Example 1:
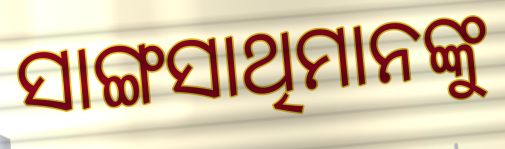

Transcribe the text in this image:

ସାଙ୍ଗସାଥିମାନଙ୍କୁ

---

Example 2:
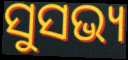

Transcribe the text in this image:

ସୁସଭ୍ୟ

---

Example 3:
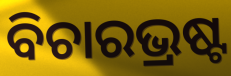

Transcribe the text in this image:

ବିଚାରଭ୍ରଷ୍ଟ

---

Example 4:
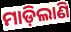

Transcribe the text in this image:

ମାଡ଼ିଲାଣି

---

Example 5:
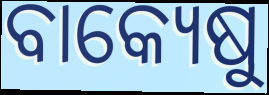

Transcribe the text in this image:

ବାକ୍ୟେଷୁ